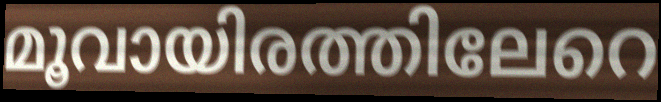
മൂവായിരത്തിലേറെ